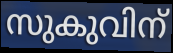
സുകുവിന്